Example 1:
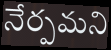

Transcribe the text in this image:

నేర్పమని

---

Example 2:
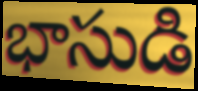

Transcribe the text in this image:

భాసుడి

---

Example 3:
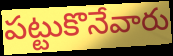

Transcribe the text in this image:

పట్టుకొనేవారు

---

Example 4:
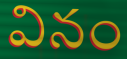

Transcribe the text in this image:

వినం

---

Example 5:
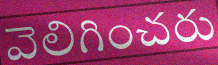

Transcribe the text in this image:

వెలిగించరు